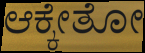
ಆಕ್ಕೇತೋ